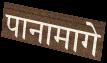
पानामागे